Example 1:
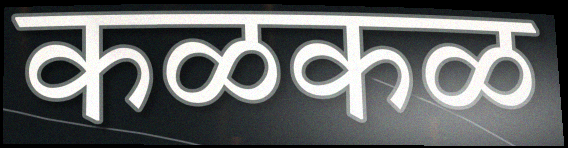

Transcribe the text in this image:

कळकळ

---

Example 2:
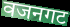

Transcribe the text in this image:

वजनगट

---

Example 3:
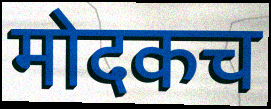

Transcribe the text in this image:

मोदकच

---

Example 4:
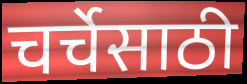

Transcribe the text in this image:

चर्चेसाठी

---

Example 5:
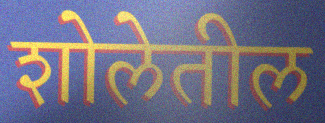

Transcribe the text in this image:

शोलेतील